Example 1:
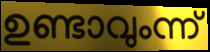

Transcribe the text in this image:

ഉണ്ടാവുംന്ന്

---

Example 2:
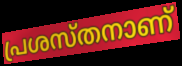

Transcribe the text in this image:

പ്രശസ്തനാണ്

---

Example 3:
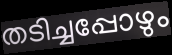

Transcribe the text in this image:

തടിച്ചപ്പോഴും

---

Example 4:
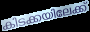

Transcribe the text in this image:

കിടക്കയിലേക്ക്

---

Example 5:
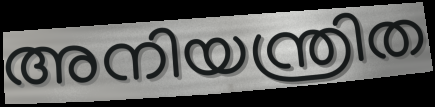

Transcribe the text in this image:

അനിയന്ത്രിത